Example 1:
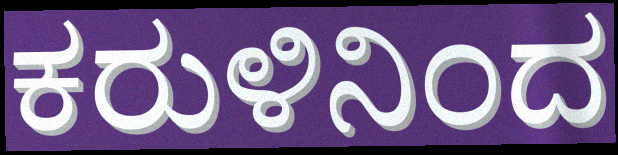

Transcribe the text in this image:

ಕರುಳಿನಿಂದ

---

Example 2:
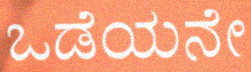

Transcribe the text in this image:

ಒಡೆಯನೇ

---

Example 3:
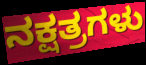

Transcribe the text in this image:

ನಕ್ಷತ್ರಗಳು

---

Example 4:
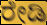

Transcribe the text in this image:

ರೇಡಿ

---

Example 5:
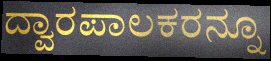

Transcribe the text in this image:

ದ್ವಾರಪಾಲಕರನ್ನೂ